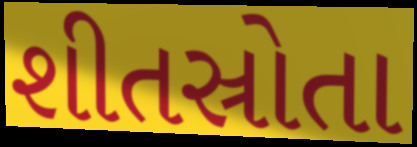
શીતસ્રોતા